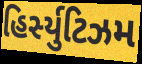
હિર્સ્યુટિઝમ